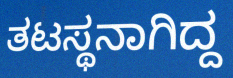
ತಟಸ್ಥನಾಗಿದ್ದ